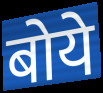
बोये